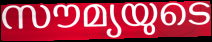
സൗമ്യയുടെ